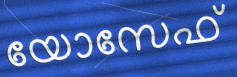
യോസേഫ്